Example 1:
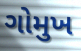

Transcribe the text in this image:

ગોમુખ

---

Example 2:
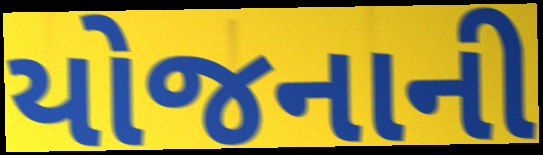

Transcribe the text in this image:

યોજનાની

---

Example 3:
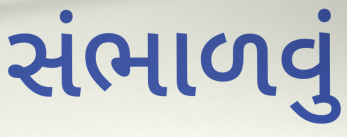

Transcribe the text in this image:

સંભાળવું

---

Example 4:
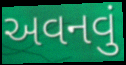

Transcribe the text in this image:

અવનવું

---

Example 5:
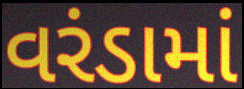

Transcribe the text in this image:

વરંડામાં